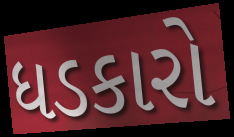
ધડકારો